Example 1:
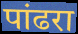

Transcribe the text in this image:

पांढरा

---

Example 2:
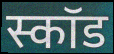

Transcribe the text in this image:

स्कॉड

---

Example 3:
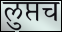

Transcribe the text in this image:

लुप्तच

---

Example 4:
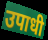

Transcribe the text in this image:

उपाधी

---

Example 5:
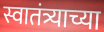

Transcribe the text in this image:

स्वातंत्र्याच्या